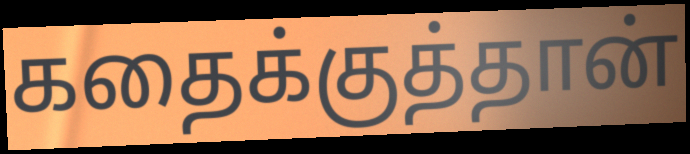
கதைக்குத்தான்